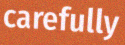
carefully